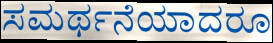
ಸಮರ್ಥನೆಯಾದರೂ